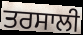
ਤਰਸਾਲੀ